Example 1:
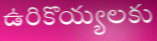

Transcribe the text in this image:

ఉరికొయ్యలకు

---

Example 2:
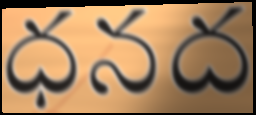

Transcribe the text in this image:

ధనద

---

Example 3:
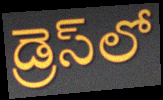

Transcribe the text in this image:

డ్రెస్‌లో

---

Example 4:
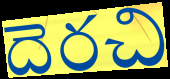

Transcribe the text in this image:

దెరచి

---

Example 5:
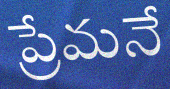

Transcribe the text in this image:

ప్రేమనే